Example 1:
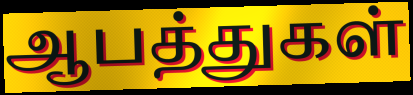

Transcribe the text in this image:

ஆபத்துகள்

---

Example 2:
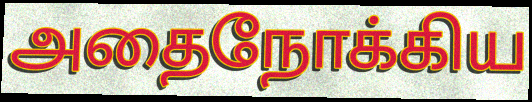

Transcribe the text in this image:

அதைநோக்கிய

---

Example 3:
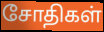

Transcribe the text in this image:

சோதிகள்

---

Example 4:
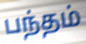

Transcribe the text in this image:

பந்தம்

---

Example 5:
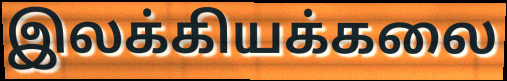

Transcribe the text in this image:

இலக்கியக்கலை